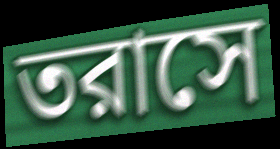
তরাসে